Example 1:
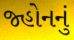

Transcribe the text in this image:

જ્હોનનું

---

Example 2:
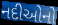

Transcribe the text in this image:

નદીઓનો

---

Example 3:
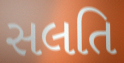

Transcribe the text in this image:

સલતિ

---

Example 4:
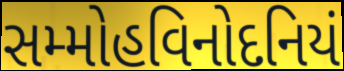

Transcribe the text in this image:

સમ્મોહવિનોદનિયં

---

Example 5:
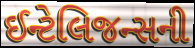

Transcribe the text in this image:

ઈન્ટેલિજન્સની